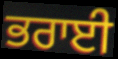
ਭਰਾਈ